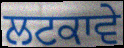
ਲਟਕਾਵੇ